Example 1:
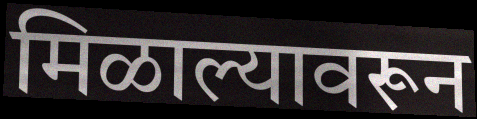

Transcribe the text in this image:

मिळाल्यावरून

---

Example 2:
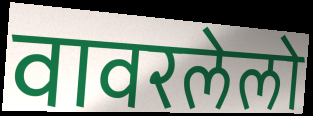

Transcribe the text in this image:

वावरलेलो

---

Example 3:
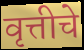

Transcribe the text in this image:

वृत्तीचे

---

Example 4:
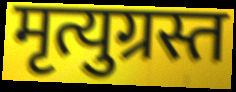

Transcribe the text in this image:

मृत्युग्रस्त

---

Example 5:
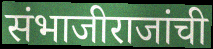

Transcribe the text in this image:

संभाजीराजांची